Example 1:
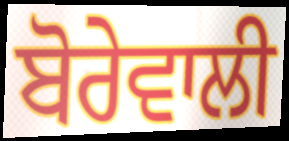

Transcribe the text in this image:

ਬੋਰੇਵਾਲੀ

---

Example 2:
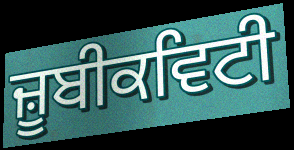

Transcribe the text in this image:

ਜ਼ੂਬੀਕਵਿਟੀ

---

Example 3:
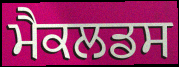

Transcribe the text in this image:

ਮੈਕਲਡਸ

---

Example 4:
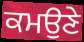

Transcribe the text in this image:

ਕਮਉਣੇ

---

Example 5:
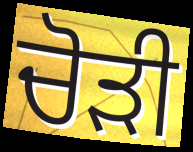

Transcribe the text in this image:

ਚੋੜੀ